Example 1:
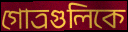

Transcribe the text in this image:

গোত্রগুলিকে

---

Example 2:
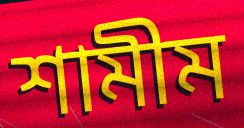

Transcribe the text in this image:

শামীম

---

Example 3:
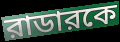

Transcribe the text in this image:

রাডারকে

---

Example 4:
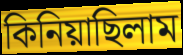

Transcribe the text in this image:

কিনিয়াছিলাম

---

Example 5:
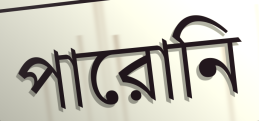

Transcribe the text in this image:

পারোনি